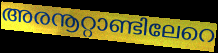
അരനൂറ്റാണ്ടിലേറെ